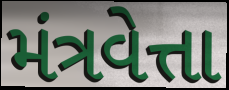
મંત્રવેત્તા